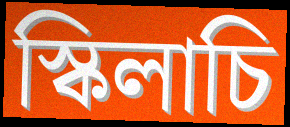
স্কিলাচি